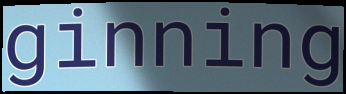
ginning